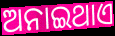
ଅନାଇଥାଏ